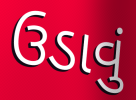
ઉડાવું